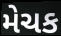
મેચક